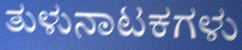
ತುಳುನಾಟಕಗಳು